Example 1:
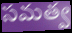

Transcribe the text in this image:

సమత్వ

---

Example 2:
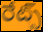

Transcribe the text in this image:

రేట్స్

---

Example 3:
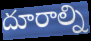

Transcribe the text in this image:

దూరాల్ని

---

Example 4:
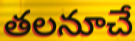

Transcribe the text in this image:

తలనూచే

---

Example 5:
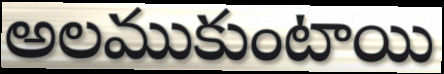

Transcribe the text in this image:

అలముకుంటాయి